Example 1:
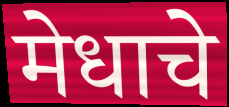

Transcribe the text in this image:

मेधाचे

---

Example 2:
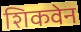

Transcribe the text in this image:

शिकवेन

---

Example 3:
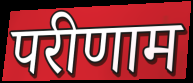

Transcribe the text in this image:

परीणाम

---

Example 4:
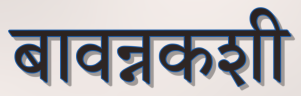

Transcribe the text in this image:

बावन्नकशी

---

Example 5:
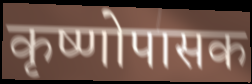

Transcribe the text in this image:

कृष्णोपासक